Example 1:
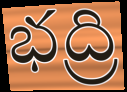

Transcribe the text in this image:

భద్రి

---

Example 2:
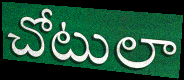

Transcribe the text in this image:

చోటులా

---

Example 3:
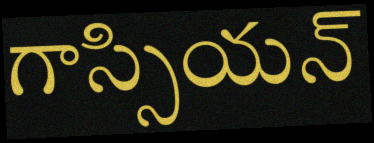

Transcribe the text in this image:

గాస్సియన్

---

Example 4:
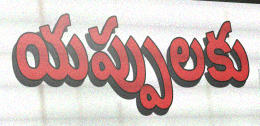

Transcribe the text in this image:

యప్పులకు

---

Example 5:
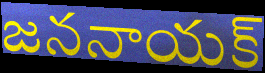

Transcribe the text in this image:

జననాయక్